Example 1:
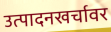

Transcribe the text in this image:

उत्पादनखर्चावर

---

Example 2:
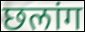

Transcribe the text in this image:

छलांग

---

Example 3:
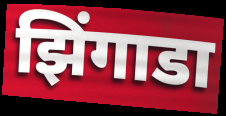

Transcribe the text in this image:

झिंगाडा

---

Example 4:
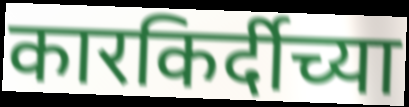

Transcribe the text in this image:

कारकिर्दीच्या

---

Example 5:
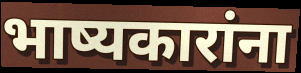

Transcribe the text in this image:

भाष्यकारांना